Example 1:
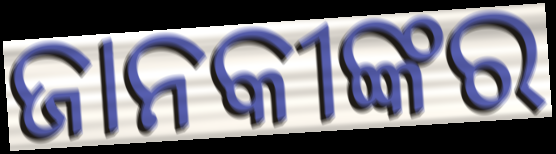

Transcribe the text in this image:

ଜାନକୀଙ୍କର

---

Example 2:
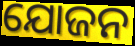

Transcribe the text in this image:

ଯୋଜନ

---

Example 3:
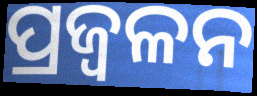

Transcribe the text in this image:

ପ୍ରଜ୍ବଳନ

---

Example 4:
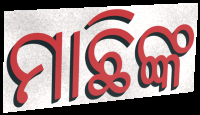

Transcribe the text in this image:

ମାଛିଙ୍କ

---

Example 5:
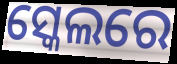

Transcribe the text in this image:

ସ୍କେଲରେ